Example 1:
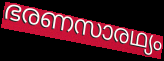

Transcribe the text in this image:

ഭരണസാരഥ്യം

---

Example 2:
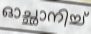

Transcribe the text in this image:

ഓച്ഛാനിച്ച്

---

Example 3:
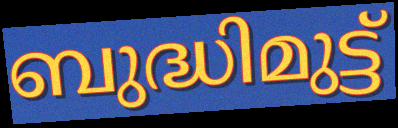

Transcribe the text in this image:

ബുദ്ധിമുട്ട്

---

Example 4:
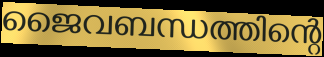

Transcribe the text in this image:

ജൈവബന്ധത്തിന്റെ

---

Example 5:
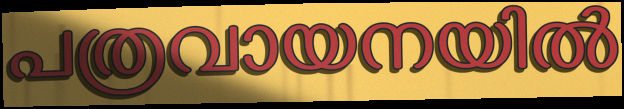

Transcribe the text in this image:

പത്രവായനയിൽ